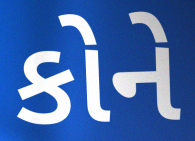
કોને